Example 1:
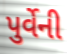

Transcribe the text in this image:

પુર્વેની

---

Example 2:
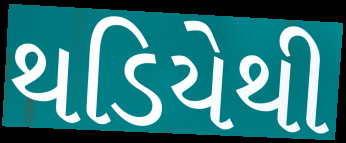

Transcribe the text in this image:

થડિયેથી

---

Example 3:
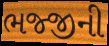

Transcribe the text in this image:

ભજ્જીની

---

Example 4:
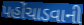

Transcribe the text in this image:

પહોંચાડવાની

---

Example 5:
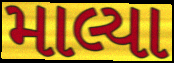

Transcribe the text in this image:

માલ્યા